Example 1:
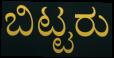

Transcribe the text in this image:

ಬಿಟ್ಟರು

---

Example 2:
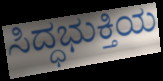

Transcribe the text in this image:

ಸಿದ್ಧಭುಕ್ತಿಯ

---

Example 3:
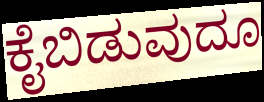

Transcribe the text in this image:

ಕೈಬಿಡುವುದೂ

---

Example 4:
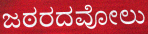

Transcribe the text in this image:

ಜಠರದವೋಲು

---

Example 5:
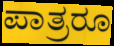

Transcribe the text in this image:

ಪಾತ್ರರೂ